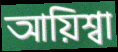
আয়িশ্বা